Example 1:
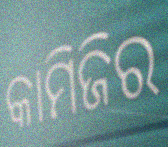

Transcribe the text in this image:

କାମିଜିର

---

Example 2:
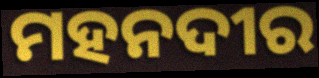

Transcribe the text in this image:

ମହନଦୀର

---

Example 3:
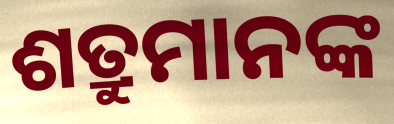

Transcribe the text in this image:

ଶତ୍ରୁମାନଙ୍କ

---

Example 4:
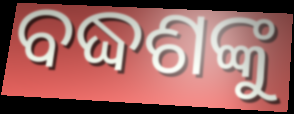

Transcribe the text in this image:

ବଦ୍ଧଶଙ୍କୁ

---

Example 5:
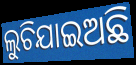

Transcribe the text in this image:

ଲୁଚିଯାଇଅଛି